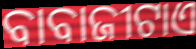
ବାବାଜୀଟାଏ